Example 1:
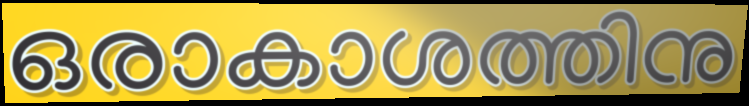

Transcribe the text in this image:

ഒരാകാശത്തിനു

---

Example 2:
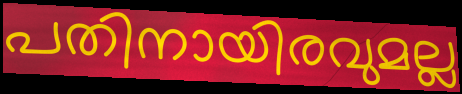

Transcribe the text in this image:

പതിനായിരവുമല്ല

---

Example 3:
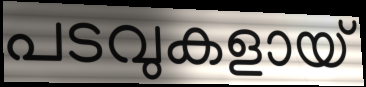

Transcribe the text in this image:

പടവുകളായ്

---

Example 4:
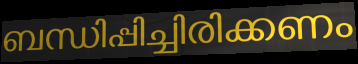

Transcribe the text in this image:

ബന്ധിപ്പിച്ചിരിക്കണം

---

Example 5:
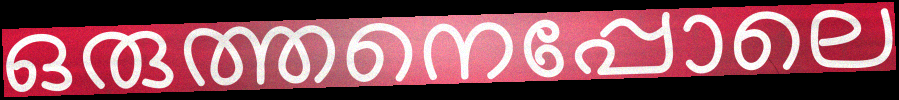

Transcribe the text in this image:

ഒരുത്തനെപ്പോലെ